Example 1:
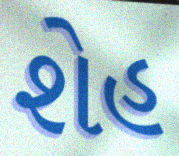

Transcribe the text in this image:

શેહ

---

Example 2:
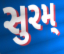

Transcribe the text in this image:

સુરમ્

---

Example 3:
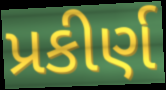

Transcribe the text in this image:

પ્રકીર્ણ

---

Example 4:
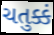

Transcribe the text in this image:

ચતુક્કં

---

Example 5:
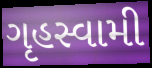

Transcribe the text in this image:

ગૃહસ્વામી